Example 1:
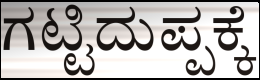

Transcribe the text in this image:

ಗಟ್ಟಿದುಪ್ಪಕ್ಕೆ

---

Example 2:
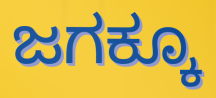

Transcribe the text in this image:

ಜಗಕ್ಕೂ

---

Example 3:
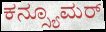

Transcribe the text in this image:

ಕನ್ಸ್ಯೂಮರ್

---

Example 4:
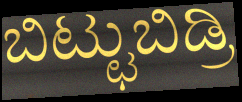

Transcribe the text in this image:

ಬಿಟ್ಟುಬಿಡ್ರಿ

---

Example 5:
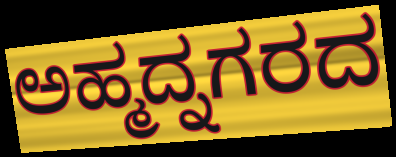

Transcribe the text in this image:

ಅಹ್ಮದ್ನಗರದ